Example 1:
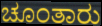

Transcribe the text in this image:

ಚೂಂತಾರು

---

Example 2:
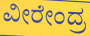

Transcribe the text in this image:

ವೀರೇಂದ್ರ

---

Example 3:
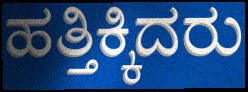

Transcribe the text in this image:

ಹತ್ತಿಕ್ಕಿದರು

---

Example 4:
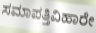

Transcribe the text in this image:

ಸಮಾಪತ್ತಿವಿಹಾರೇ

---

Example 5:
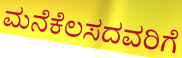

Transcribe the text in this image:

ಮನೆಕೆಲಸದವರಿಗೆ